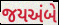
જયઅંબે